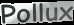
Pollux